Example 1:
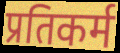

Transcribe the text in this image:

प्रतिकर्म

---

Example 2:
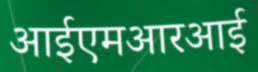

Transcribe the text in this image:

आईएमआरआई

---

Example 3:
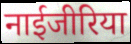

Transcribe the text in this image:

नाईजीरिया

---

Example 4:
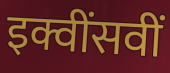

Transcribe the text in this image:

इक्वींसवीं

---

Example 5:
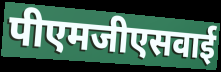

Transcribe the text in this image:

पीएमजीएसवाई